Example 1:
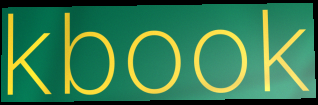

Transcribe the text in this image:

kbook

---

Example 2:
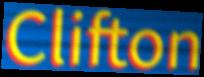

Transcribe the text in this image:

Clifton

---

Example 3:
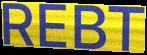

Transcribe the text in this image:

REBT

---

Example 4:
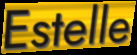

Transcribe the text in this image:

Estelle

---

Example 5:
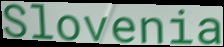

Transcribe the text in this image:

Slovenia